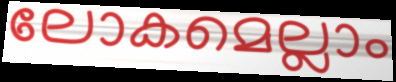
ലോകമെല്ലാം